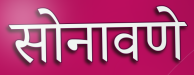
सोनावणे